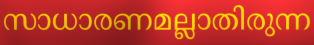
സാധാരണമല്ലാതിരുന്ന